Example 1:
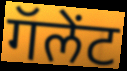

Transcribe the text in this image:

गॅलेंट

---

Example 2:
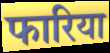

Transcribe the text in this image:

फारिया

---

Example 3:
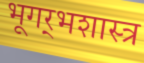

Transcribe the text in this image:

भूगर्भशास्त्र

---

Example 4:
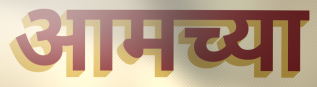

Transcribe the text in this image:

आमच्या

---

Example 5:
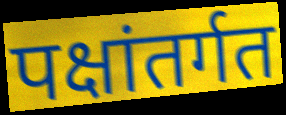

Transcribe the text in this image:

पक्षांतर्गत